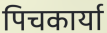
पिचकार्या